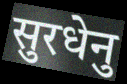
सुरधेनु